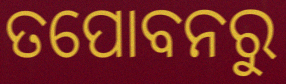
ତପୋବନରୁ